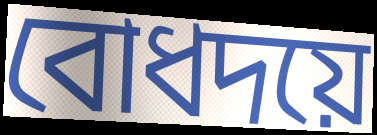
বোধদয়ে